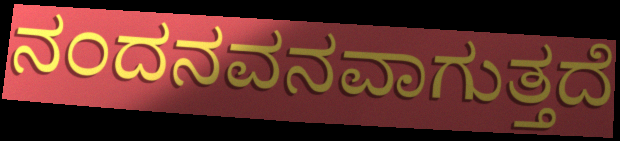
ನಂದನವನವಾಗುತ್ತದೆ